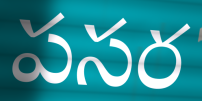
పసర